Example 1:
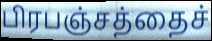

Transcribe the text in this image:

பிரபஞ்சத்தைச்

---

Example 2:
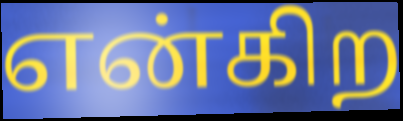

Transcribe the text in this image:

என்கிற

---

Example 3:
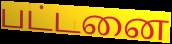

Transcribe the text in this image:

பட்டனை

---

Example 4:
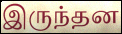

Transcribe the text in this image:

இருந்தன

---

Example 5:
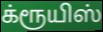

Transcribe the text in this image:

க்ரூயிஸ்